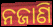
ନଜାଣି